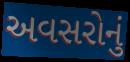
અવસરોનું